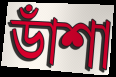
ডাঁশা